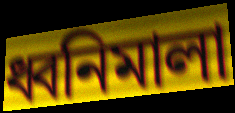
ধ্বনিমালা